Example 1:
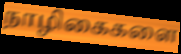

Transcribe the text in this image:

நாழிகைகளை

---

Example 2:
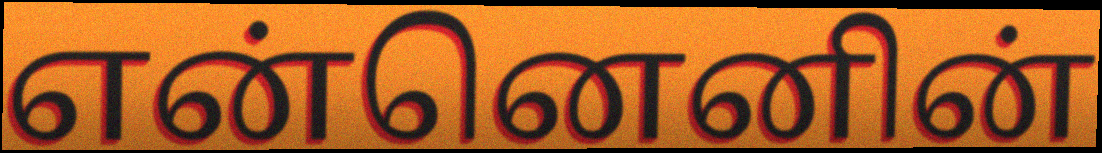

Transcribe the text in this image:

என்னெனின்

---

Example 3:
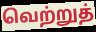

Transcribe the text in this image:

வெற்றுத்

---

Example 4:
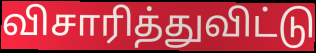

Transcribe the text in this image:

விசாரித்துவிட்டு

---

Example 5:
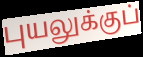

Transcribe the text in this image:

புயலுக்குப்